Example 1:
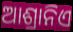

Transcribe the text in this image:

ଆଶ୍ରାନିଏ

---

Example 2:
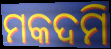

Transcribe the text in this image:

ମକଦମି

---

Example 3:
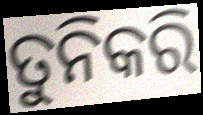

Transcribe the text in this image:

ତୁନିକରି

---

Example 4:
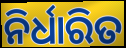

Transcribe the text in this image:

ନିର୍ଧାରିତ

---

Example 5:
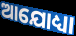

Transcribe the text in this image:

ଆଯୋଧ୍ୟା